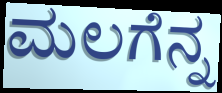
ಮಲಗೆನ್ನ